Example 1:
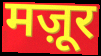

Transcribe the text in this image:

मज़ूर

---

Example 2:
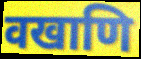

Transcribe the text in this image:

वखाणि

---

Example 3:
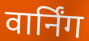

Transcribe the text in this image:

वार्निंग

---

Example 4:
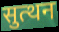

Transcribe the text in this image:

सुत्थन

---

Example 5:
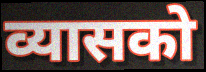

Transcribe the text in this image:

व्यासको